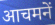
आचमनें